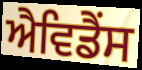
ਐਵਿਡੈਂਸ